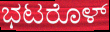
ಭಟರೊಳ್